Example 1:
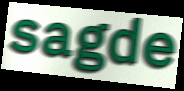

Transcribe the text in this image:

sagde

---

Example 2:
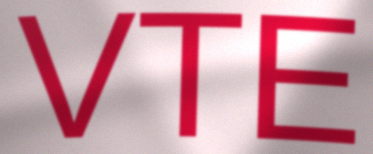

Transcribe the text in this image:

VTE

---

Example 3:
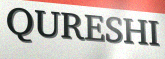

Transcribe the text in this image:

QURESHI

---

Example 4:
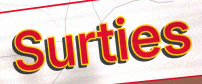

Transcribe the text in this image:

Surties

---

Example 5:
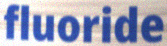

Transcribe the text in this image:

fluoride